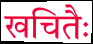
खचितैः